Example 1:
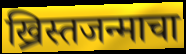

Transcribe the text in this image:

ख्रिस्तजन्माचा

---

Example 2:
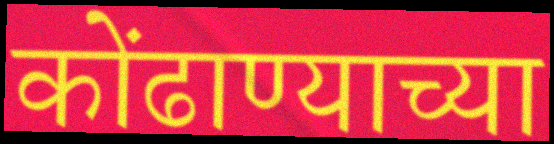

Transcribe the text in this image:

कोंढाण्याच्या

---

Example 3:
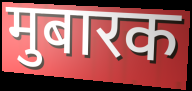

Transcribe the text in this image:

मुबारक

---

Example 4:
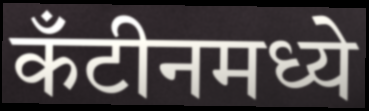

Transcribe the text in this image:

कँटीनमध्ये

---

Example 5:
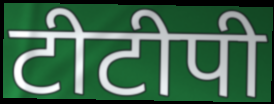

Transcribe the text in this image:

टीटीपी